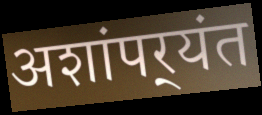
अशांपर्यंत